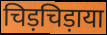
चिड़चिड़ाया